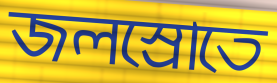
জলস্রোতে